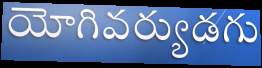
యోగివర్యుడగు